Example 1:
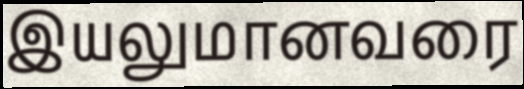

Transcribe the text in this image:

இயலுமானவரை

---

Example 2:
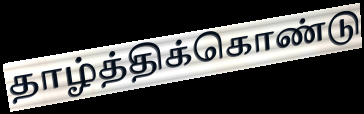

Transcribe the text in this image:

தாழ்த்திக்கொண்டு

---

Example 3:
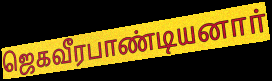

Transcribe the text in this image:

ஜெகவீரபாண்டியனார்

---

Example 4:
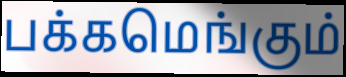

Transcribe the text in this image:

பக்கமெங்கும்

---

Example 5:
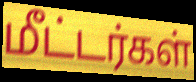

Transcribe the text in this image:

மீட்டர்கள்